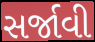
સર્જાવી